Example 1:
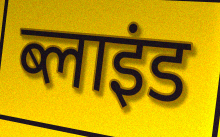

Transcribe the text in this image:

ब्लाइंड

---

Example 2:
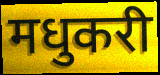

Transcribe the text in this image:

मधुकरी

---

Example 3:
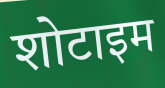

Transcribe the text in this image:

शोटाइम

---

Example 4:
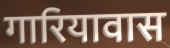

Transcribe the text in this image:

गारियावास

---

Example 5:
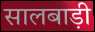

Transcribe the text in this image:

सालबाड़ी